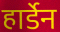
हार्डेन